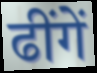
ढींगें